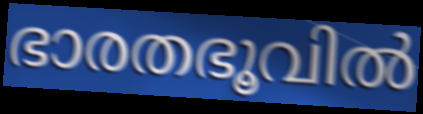
ഭാരതഭൂവിൽ